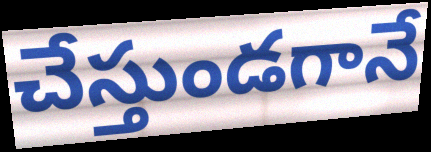
చేస్తుండగానే